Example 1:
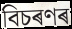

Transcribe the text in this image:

বিচৰণৰ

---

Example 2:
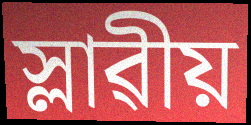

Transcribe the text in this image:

স্লাৱীয়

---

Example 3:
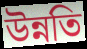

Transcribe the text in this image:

উন্নতি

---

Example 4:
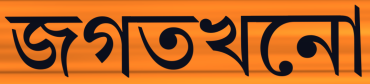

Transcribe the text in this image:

জগতখনো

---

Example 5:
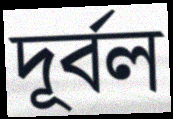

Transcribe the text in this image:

দূৰ্বল